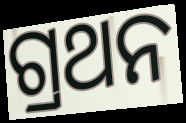
ଗ୍ରଥନ